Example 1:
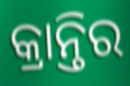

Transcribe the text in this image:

କ୍ରାନ୍ତିର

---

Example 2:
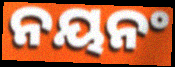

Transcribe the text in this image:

ନୟନଂ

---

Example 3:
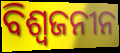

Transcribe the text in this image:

ବିଶ୍ବଜନୀନ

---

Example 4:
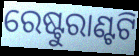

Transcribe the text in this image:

ରେଷ୍ଟୁରାଣ୍ଟଟି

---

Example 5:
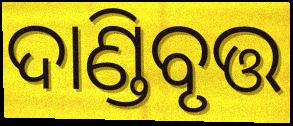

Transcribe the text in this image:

ଦାଣ୍ଡିବୃତ୍ତ